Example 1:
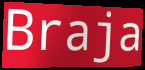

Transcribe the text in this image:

Braja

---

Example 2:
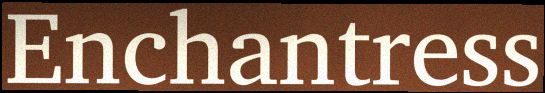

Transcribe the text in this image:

Enchantress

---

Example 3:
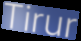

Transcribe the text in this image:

Tirur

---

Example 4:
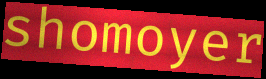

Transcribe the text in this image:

shomoyer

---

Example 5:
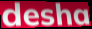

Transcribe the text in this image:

desha